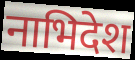
नाभिदेश